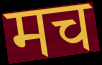
मच